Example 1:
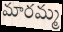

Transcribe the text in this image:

మారమ్మ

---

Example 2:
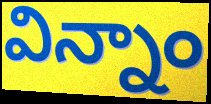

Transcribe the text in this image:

విన్నాం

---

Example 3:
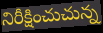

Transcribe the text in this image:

నిరీక్షించుచున్న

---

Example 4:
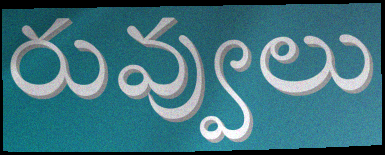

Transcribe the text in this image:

రువ్వులు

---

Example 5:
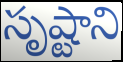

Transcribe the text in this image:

సృష్టాని